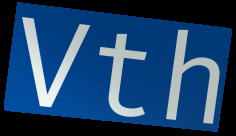
Vth